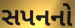
સપનનો